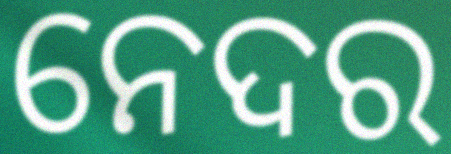
ନେଦର